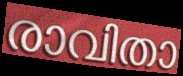
രാവിതാ